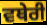
ਵਥੇਰੀ